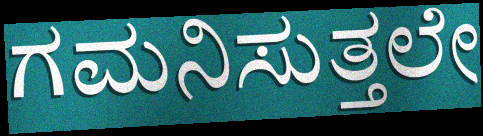
ಗಮನಿಸುತ್ತಲೇ